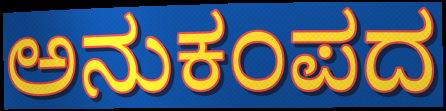
ಅನುಕಂಪದ